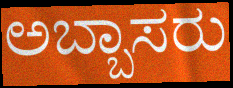
ಅಬ್ಬಾಸರು